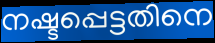
നഷ്ടപ്പെട്ടതിനെ